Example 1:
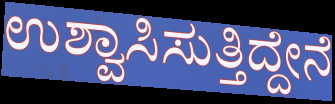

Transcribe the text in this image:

ಉಶ್ವಾಸಿಸುತ್ತಿದ್ದೇನೆ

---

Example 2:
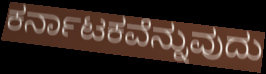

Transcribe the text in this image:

ಕರ್ನಾಟಕವೆನ್ನುವುದು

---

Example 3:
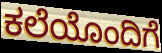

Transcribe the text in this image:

ಕಲೆಯೊಂದಿಗೆ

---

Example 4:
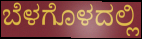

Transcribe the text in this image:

ಬೆಳಗೊಳದಲ್ಲಿ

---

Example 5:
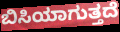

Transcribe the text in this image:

ಬಿಸಿಯಾಗುತ್ತದೆ